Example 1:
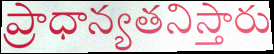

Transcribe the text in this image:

ప్రాధాన్యతనిస్తారు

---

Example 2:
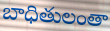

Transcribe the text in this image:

బాధితులంతా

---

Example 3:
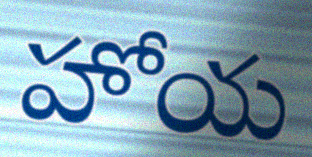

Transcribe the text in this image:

హోయ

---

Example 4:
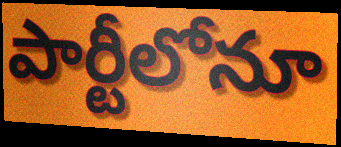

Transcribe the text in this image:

పార్టీలోనూ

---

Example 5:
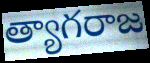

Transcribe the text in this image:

త్యాగరాజ